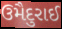
ઉમૈદુરાઈ